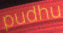
pudhu